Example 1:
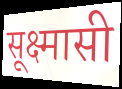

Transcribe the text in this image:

सूक्ष्मासी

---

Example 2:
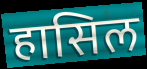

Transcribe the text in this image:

हासिल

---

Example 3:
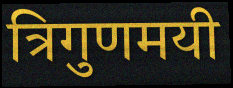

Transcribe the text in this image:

त्रिगुणमयी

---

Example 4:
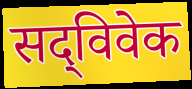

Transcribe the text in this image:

सद्‌विवेक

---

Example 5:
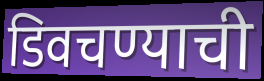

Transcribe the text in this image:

डिवचण्याची